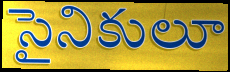
సైనికులూ